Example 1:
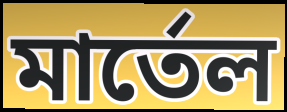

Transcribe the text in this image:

মার্তেল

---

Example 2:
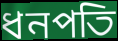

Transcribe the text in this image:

ধনপতি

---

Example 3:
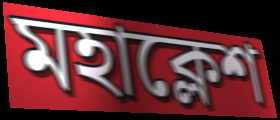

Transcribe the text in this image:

মহাক্লেশ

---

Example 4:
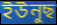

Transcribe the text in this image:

ইউনুছ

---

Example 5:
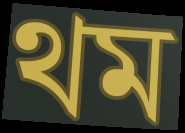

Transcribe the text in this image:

থম